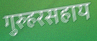
गुरुहरसहाय